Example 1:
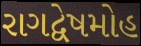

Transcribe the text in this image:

રાગદ્વેષમોહ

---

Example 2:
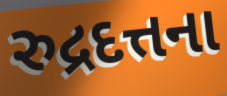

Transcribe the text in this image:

રુદ્રદત્તના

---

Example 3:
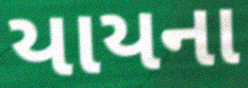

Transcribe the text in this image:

યાયના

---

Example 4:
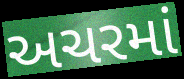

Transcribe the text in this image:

અચરમાં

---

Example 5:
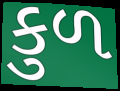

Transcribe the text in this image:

કુળ